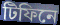
টিফিনে